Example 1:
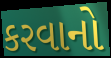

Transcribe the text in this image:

કરવાનો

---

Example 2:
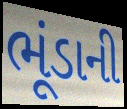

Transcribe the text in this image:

ભૂંડાની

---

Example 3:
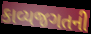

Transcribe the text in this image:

કાવ્યજગતની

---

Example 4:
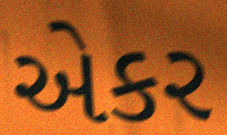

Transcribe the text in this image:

એકર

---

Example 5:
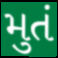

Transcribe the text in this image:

મુતં